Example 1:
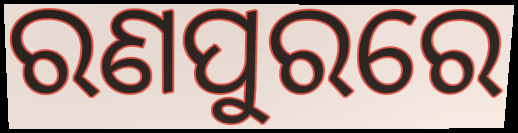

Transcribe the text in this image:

ରଣପୁରରେ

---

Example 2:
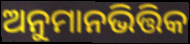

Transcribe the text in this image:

ଅନୁମାନଭିତ୍ତିକ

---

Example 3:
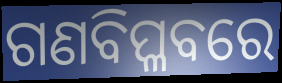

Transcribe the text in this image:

ଗଣବିପ୍ଳବରେ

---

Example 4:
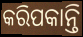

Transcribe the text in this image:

କରିପକାନ୍ତି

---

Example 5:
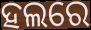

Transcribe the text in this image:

ହଲରେ